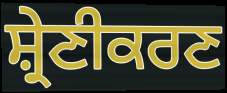
ਸ਼੍ਰੇਣੀਕਰਣ